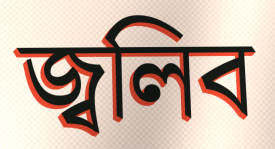
জ্বলিব